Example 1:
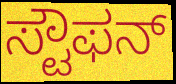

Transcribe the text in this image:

ಸ್ಟೌಫನ್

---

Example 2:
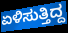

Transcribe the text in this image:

ಏಳಿಸುತ್ತಿದ್ದ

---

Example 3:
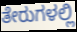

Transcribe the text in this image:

ತೇರುಗಳಲ್ಲಿ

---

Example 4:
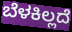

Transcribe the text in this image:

ಬೆಳಕಿಲ್ಲದೆ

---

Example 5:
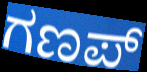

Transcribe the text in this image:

ಗಣಪ್